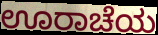
ಊರಾಚೆಯ